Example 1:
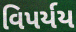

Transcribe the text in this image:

વિપર્યય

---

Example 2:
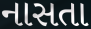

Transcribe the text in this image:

નાસતા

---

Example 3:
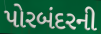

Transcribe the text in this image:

પોરબંદરની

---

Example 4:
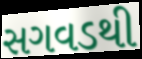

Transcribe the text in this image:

સગવડથી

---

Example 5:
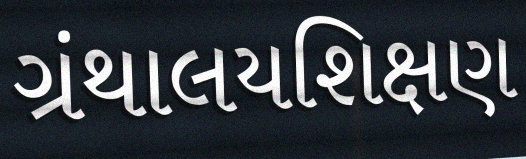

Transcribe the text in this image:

ગ્રંથાલયશિક્ષણ